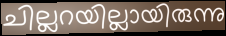
ചില്ലറയില്ലായിരുന്നു